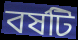
বর্ষটি